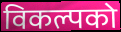
विकल्पको